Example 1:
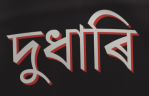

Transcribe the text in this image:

দুধাৰি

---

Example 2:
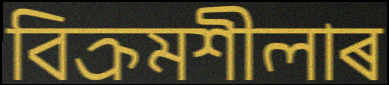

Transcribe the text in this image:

বিক্ৰমশীলাৰ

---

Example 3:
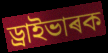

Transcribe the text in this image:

ড্ৰাইভাৰক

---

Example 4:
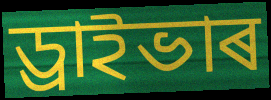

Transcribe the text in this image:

ড্ৰাইভাৰ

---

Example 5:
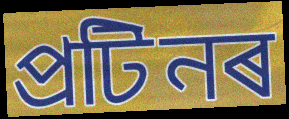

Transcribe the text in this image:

প্ৰটিনৰ